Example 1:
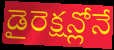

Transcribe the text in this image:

డైరెక్షన్లోనే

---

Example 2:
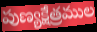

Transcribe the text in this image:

పుణ్యక్షేత్రముల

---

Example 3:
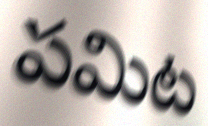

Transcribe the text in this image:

పమిట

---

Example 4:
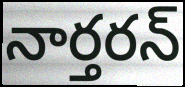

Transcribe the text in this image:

నార్తరన్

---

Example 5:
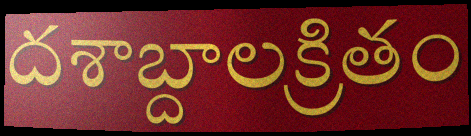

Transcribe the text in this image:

దశాబ్దాలక్రితం